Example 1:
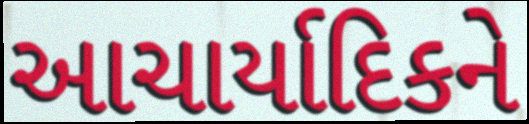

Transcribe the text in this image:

આચાર્યાદિકને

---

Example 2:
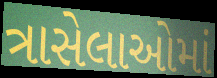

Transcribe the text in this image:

ત્રાસેલાઓમાં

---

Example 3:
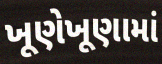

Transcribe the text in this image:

ખૂણેખૂણામાં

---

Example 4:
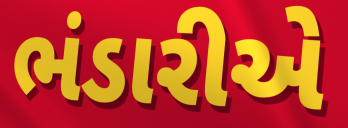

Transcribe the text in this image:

ભંડારીએ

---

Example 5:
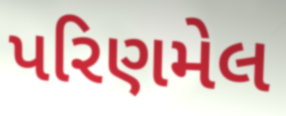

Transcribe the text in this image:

પરિણમેલ